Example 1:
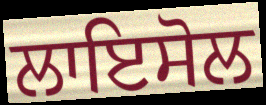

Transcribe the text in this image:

ਲਾਇਸੋਲ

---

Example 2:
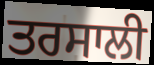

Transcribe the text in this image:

ਤਰਸਾਲੀ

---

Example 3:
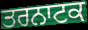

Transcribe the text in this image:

ਤਰਨਾਟਕ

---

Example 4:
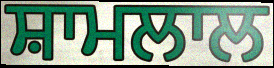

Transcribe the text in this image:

ਸ਼ਾਮਲਾਲ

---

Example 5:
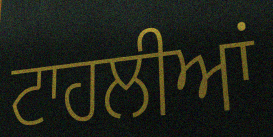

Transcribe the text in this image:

ਟਾਹਲੀਆਂ